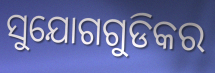
ସୁଯୋଗଗୁଡିକର